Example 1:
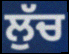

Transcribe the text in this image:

ਲੁੱਚ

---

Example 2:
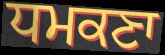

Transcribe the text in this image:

ਧਮਕਣਾ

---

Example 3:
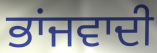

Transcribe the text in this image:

ਭਾਂਜਵਾਦੀ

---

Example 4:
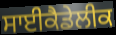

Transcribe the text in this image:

ਸਾਈਕੈਡੇਲੀਕ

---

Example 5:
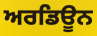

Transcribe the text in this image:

ਅਰਡਿਊਨ